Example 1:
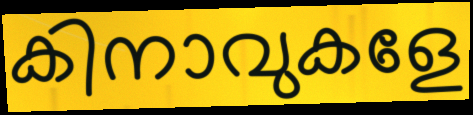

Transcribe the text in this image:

കിനാവുകളേ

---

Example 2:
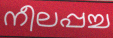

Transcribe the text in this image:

നീലപ്പച്ച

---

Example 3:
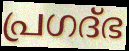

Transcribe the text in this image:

പ്രഗദ്ഭ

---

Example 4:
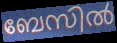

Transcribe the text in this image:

ബേസിൽ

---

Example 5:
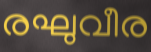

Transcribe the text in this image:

രഘുവീര